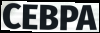
CEBPA